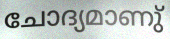
ചോദ്യമാണു്